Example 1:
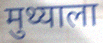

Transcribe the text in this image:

मुथ्याला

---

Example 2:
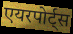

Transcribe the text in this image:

एयरपोर्ट्स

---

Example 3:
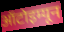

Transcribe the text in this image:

ऑटोइम्‍यून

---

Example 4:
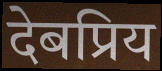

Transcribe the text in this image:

देबप्रिय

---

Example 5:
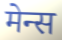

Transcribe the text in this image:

मेन्स